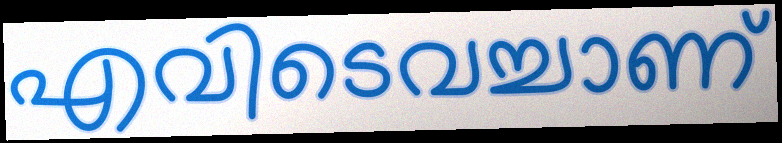
എവിടെവച്ചാണ്